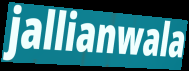
jallianwala